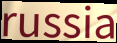
russia